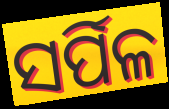
ସର୍ପିଳ